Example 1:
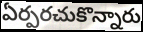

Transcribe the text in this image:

ఏర్పరచుకొన్నారు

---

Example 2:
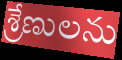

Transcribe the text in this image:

శ్రేణులను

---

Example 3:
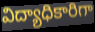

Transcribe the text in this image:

విద్యాధికారిగా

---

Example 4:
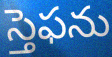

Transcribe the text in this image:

స్తెఫను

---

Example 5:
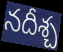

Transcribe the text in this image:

నదీశ్చ